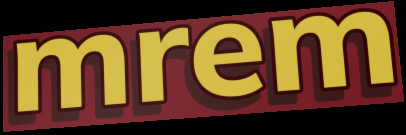
mrem